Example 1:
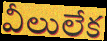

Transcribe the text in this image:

వీలులేక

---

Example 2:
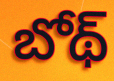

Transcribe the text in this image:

బోథ్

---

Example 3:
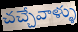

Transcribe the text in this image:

చచ్చేవాళ్ళు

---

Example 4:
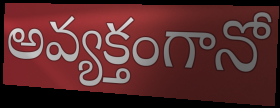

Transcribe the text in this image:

అవ్యక్తంగానో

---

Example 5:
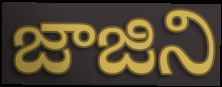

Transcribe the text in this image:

జాజిని